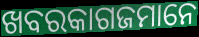
ଖବରକାଗଜମାନେ